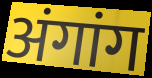
अंगांग